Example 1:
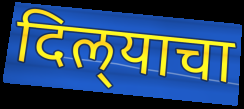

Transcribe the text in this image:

दिल्याचा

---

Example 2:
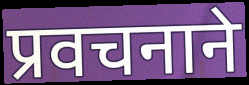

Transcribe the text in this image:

प्रवचनाने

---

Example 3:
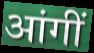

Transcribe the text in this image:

आंगीं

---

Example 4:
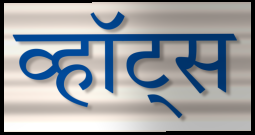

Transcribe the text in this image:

व्हॉट्स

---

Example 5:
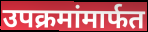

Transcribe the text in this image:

उपक्रमांमार्फत